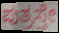
ಪುತ್ರಸ್ತೇ